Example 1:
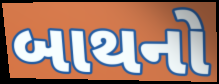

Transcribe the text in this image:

બાથનો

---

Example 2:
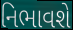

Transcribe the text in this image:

નિભાવશે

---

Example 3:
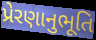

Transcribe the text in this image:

પ્રેરણાનુભૂતિ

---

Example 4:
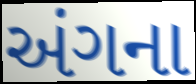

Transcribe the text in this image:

અંગના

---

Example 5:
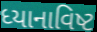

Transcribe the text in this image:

ધ્યાનાવિષ્ટ